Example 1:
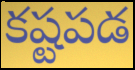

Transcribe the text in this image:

కష్టపడ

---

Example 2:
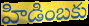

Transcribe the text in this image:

హిడింబకు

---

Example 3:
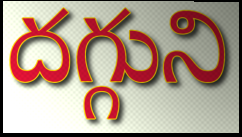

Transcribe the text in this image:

దగ్గుని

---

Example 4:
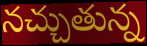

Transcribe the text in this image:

నచ్చుతున్న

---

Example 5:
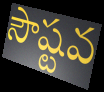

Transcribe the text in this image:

సౌష్టవ